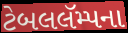
ટેબલલૅમ્પના